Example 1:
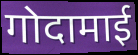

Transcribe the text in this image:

गोदामाई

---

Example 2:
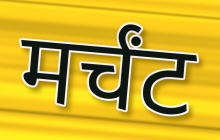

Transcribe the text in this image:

मर्चंट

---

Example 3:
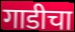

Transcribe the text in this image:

गाडीचा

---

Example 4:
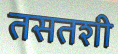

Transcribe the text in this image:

तसतशी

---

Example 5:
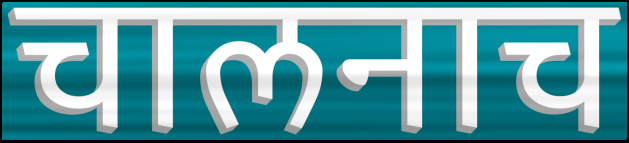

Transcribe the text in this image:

चालनाच